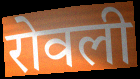
रोवली